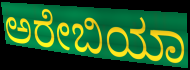
ಅರೇಬಿಯಾ